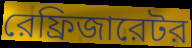
রেফ্রিজারেটর